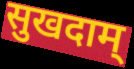
सुखदाम्